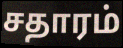
சதாரம்